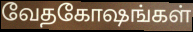
வேதகோஷங்கள்